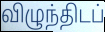
விழுந்திடப்